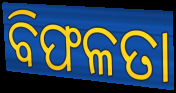
ବିଫଳତା